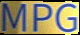
MPG